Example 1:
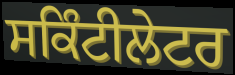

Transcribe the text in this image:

ਸਕਿੰਟੀਲੇਟਰ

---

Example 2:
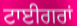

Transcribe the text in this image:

ਟਾਈਗਰਾਂ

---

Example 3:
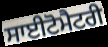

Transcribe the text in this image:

ਸਾਈਟੋਮੈਟਰੀ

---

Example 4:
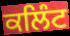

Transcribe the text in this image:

ਕਲਿੰਟ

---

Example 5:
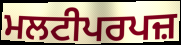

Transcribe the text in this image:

ਮਲਟੀਪਰਪਜ਼